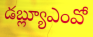
డబ్ల్యూఎంవో